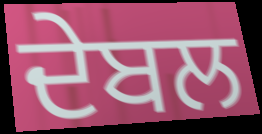
ਦੇਬਲ